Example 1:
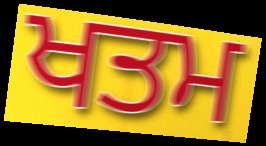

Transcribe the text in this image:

ਖਤਮ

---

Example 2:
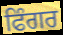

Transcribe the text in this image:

ਫਿੰਗਰ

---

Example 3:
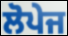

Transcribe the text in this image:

ਲੋਪੇਜ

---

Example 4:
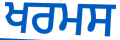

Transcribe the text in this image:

ਖਰਮਸ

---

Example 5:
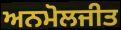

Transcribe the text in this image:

ਅਨਮੋਲਜੀਤ